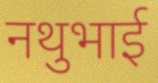
नथुभाई